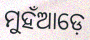
ମୁହଁଆଡ଼େ